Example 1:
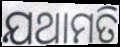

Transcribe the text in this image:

ଯଥାମତି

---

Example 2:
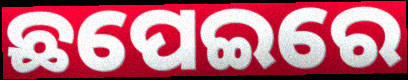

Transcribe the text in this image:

ଛପେଇରେ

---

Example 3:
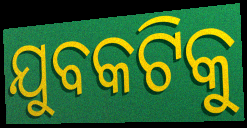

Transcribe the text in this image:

ଯୁବକଟିକୁ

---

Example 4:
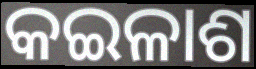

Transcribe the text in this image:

କଇଳାଶ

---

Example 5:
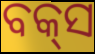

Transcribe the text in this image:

ବକ୍‍ସ